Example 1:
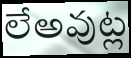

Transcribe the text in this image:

లేఅవుట్ల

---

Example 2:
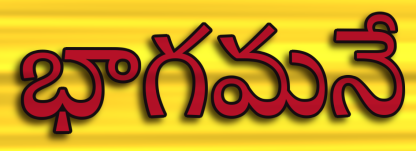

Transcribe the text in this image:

భాగమనే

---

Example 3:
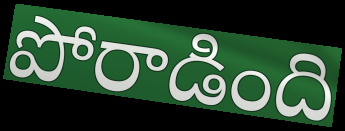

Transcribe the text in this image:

పోరాడింది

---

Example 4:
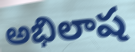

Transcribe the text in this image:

అభిలాష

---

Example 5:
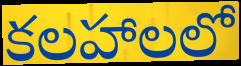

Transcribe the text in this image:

కలహాలలో